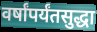
वर्षांपर्यंतसुद्धा